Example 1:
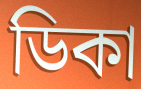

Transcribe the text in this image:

ডিকা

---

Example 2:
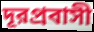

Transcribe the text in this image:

দূরপ্রবাসী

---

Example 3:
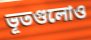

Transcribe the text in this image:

ভূতগুলোও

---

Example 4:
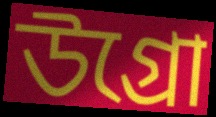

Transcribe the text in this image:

উগ্রো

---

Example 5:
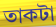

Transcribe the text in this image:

তাকটা